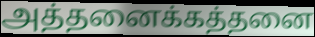
அத்தனைக்கத்தனை